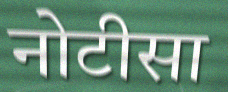
नोटीसा